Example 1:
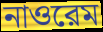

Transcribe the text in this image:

নাওরেম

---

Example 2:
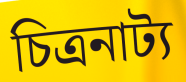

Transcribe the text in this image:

চিত্রনাট্য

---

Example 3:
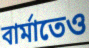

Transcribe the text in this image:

বার্মাতেও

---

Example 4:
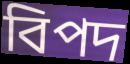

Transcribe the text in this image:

বিপদ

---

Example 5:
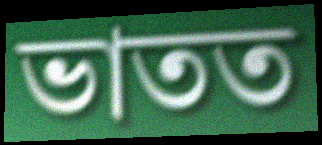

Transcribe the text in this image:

ভাতত